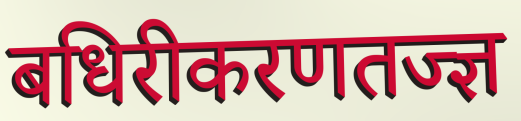
बधिरीकरणतज्ज्ञ